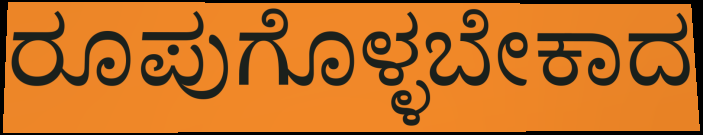
ರೂಪುಗೊಳ್ಳಬೇಕಾದ